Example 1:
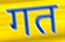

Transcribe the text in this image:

गत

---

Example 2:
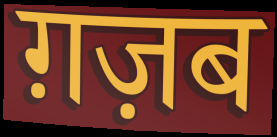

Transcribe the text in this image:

ग़ज़ब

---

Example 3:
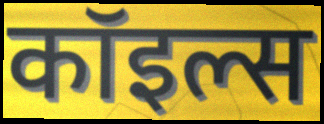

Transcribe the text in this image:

कॉइल्स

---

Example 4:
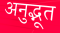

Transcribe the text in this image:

अनुद्भूत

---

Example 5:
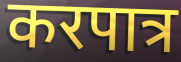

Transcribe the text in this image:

करपात्र